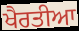
ਖੈਰਤੀਆ